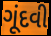
ગૂંદવી